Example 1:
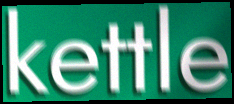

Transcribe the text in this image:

kettle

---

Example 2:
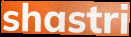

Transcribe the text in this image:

shastri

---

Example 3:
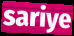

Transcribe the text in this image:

sariye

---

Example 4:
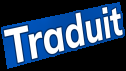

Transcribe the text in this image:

Traduit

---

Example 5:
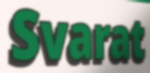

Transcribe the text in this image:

Svarat